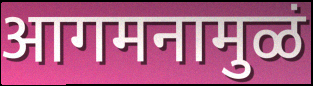
आगमनामुळं